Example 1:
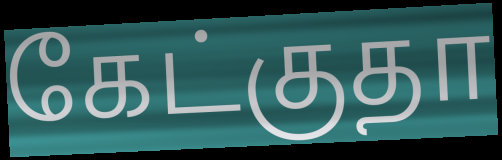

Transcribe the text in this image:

கேட்குதா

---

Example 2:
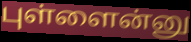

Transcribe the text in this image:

புள்ளைன்னு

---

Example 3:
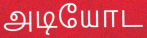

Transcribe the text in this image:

அடியோட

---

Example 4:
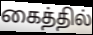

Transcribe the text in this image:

கைத்தில்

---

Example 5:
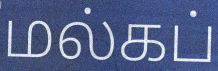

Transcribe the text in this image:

மல்கப்